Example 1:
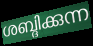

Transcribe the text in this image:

ശബ്ദിക്കുന്ന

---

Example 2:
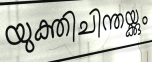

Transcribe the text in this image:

യുക്തിചിന്തയ്ക്കും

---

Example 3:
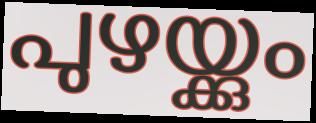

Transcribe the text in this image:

പുഴയ്ക്കും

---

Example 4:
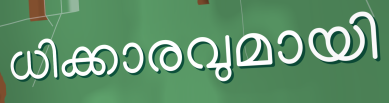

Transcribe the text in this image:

ധിക്കാരവുമായി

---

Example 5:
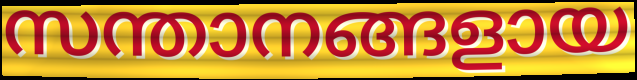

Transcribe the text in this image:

സന്താനങ്ങളായ